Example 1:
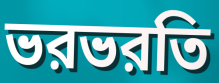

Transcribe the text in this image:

ভরভরতি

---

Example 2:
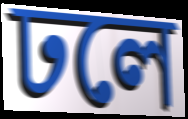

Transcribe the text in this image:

ঢলে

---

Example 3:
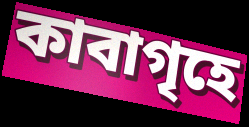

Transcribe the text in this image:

কাবাগৃহে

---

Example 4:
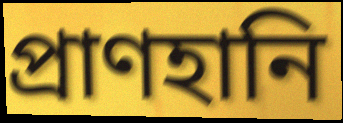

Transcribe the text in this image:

প্রাণহানি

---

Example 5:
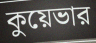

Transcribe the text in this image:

কুয়েভার